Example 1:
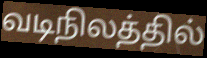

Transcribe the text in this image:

வடிநிலத்தில்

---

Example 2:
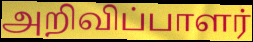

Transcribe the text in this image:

அறிவிப்பாளர்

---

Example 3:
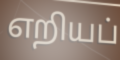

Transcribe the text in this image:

எறியப்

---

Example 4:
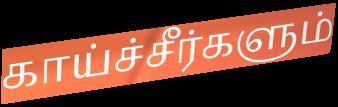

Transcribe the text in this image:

காய்ச்சீர்களும்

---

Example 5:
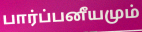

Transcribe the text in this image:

பார்ப்பனீயமும்